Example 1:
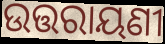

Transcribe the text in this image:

ଉତ୍ତରାୟଣୀ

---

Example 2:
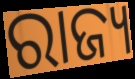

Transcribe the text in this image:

ରାଜ୍ୟ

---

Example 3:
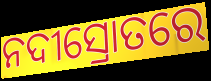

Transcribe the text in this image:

ନଦୀସ୍ରୋତରେ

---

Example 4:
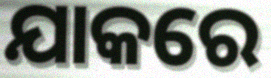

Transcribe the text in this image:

ଯାକରେ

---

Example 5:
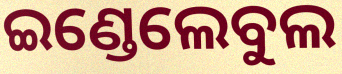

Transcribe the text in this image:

ଇଣ୍ଡେଲେବୁଲ